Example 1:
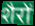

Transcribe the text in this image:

शैरों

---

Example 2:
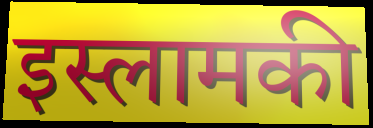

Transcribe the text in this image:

इस्लामकी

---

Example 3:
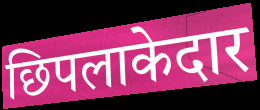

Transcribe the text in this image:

छिपलाकेदार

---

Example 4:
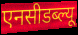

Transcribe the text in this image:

एनसीडब्ल्यू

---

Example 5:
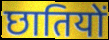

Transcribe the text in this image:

छातियों